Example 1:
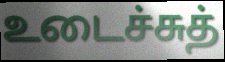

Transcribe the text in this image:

உடைச்சுத்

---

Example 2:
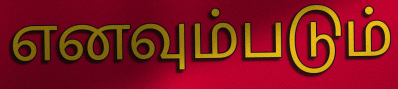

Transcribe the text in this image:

எனவும்படும்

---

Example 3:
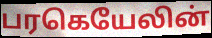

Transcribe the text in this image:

பரகெயேலின்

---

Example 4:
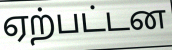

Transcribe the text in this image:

ஏற்பட்டன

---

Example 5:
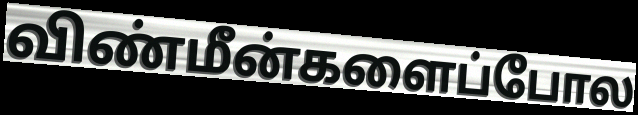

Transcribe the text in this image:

விண்மீன்களைப்போல